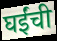
घईंची